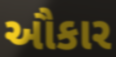
ઔકાર